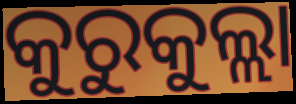
କୁରୁକୁଲ୍ଲା